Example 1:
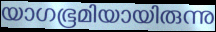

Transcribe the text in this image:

യാഗഭൂമിയായിരുന്നു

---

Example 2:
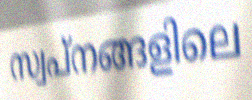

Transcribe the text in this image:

സ്വപ്നങ്ങളിലെ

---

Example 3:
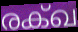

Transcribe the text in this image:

രക്ഖ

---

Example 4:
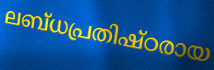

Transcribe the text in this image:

ലബ്ധപ്രതിഷ്ഠരായ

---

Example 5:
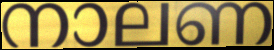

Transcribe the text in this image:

നാലണ